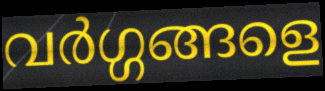
വർഗ്ഗങ്ങളെ